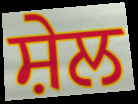
ਸ਼ੇਲ